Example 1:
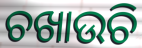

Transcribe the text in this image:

ଚଖାଉଚି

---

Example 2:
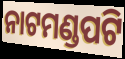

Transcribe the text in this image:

ନାଟମଣ୍ଡପଟି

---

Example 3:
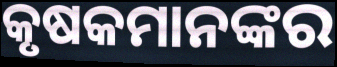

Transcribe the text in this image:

କୃଷକମାନଙ୍କର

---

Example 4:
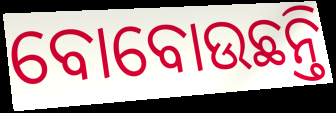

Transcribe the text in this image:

ବୋବୋଉଛନ୍ତି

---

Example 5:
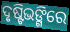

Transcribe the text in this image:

ଦୃଷ୍ଟିଭଙ୍ଗିରେ